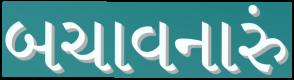
બચાવનારું